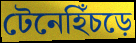
টেনেহিঁচড়ে